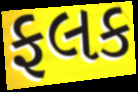
ફલક